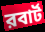
রবার্ট